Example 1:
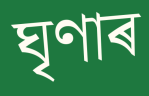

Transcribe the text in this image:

ঘৃণাৰ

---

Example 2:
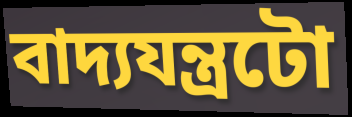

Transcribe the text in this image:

বাদ্যযন্ত্ৰটো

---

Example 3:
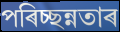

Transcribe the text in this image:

পৰিচ্ছন্নতাৰ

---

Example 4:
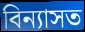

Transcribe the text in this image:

বিন্যাসত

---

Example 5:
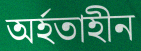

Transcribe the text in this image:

অৰ্হতাহীন